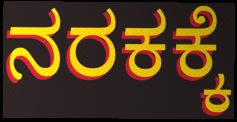
ನರಕಕ್ಕೆ